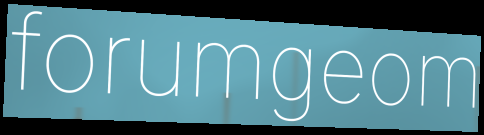
forumgeom